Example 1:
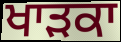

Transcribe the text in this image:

ਖਾੜਕਾ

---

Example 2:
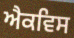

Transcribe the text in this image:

ਐਕਵਿਸ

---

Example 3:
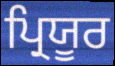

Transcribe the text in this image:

ਪ੍ਰਿਯੂਰ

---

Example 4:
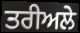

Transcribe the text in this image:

ਤਰੀਅਲੇ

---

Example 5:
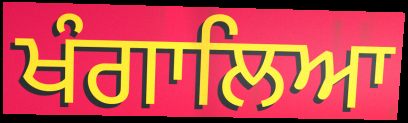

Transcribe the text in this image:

ਖੰਗਾਲਿਆ